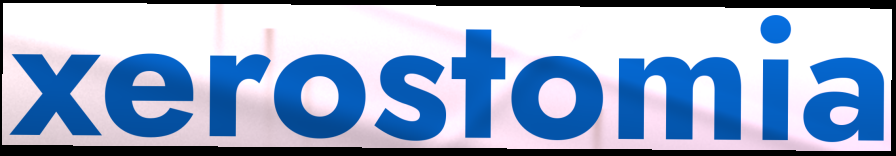
xerostomia